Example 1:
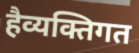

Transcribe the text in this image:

हैव्यक्तिगत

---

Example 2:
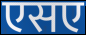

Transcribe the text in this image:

एसए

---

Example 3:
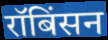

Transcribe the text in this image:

रॉबिंसन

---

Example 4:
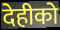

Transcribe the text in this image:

देहीको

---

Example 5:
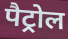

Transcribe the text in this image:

पैट्रोल